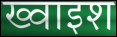
ख्वाइश